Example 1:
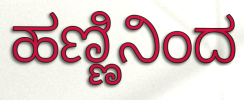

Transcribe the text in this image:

ಹಣ್ಣಿನಿಂದ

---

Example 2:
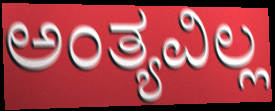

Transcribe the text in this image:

ಅಂತ್ಯವಿಲ್ಲ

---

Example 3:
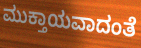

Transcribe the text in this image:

ಮುಕ್ತಾಯವಾದಂತೆ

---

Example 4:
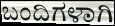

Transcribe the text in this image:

ಬಂದಿಗಳಾಗಿ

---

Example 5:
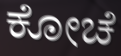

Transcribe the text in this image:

ಕೋಚೆ